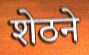
शेठने